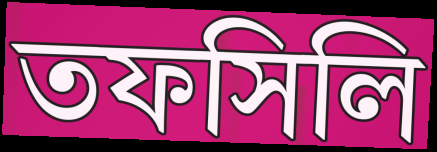
তফসিলি